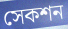
সেকশন